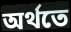
অৰ্থতে